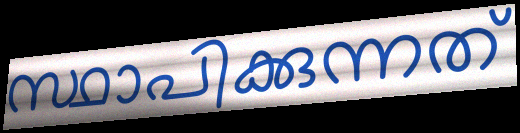
സ്ഥാപിക്കുന്നത്